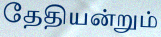
தேதியன்றும்